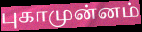
புகாமுன்னம்